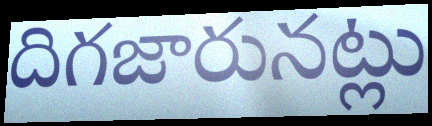
దిగజారునట్లు